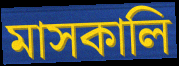
মাসকালি